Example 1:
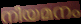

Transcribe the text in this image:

നിയമനം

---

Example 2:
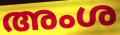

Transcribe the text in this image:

അംശ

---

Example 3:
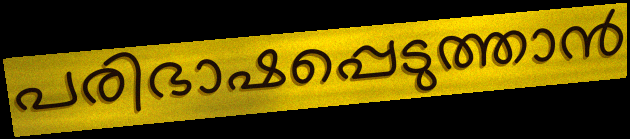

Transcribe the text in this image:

പരിഭാഷപ്പെടുത്താൻ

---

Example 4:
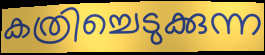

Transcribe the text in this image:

കത്രിച്ചെടുക്കുന്ന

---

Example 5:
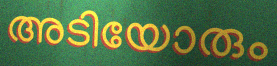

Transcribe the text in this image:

അടിയോരും